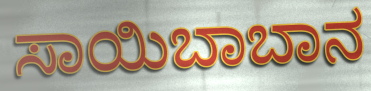
ಸಾಯಿಬಾಬಾನ